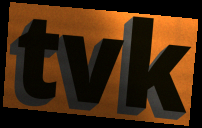
tvk